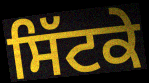
ਸਿੱਟਕੇ